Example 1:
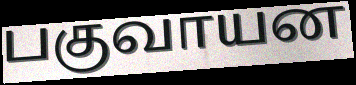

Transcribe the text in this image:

பகுவாயன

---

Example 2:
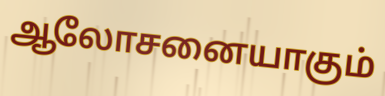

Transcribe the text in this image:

ஆலோசனையாகும்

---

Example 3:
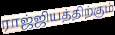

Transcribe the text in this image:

ராஜ்ஜியத்திற்கும்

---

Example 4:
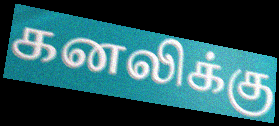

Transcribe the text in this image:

கனலிக்கு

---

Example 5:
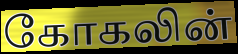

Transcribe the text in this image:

கோகலின்